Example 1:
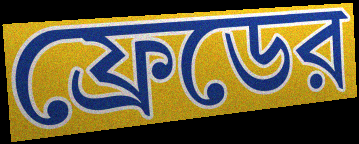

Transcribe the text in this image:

ফ্রেডের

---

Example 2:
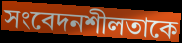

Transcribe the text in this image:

সংবেদনশীলতাকে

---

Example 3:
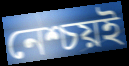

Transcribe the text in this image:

নেশ্চয়ই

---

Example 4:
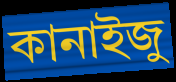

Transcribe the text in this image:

কানাইজু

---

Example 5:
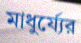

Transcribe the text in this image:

মাধুর্য্যের